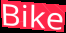
Bike